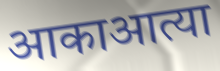
आकाआत्या